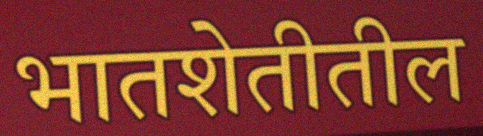
भातशेतीतील